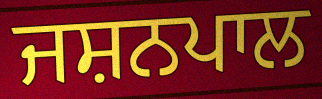
ਜਸ਼ਨਪਾਲ